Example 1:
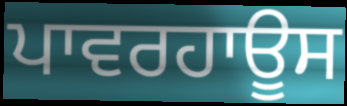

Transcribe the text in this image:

ਪਾਵਰਹਾਊਸ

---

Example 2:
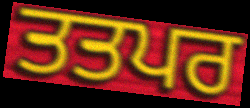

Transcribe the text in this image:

ਤਤਪਰ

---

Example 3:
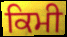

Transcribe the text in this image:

ਕਿਮੀ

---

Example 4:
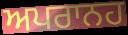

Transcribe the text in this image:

ਅਪਰਾਨਹ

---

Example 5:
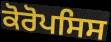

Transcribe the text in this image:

ਕੋਰੋਪਸਿਸ